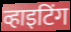
व्हाइटिंग